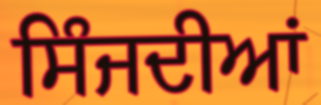
ਸਿੰਜਦੀਆਂ